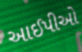
આઈપીઓ